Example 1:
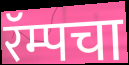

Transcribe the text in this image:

रॅम्पचा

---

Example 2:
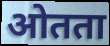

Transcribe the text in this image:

ओतता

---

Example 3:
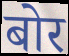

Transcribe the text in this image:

बोर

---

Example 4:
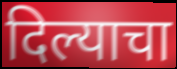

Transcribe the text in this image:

दिल्याचा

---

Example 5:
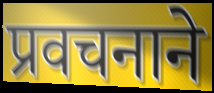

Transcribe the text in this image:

प्रवचनाने